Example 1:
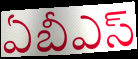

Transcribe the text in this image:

ఏబీఎస్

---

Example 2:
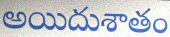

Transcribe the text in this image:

అయిదుశాతం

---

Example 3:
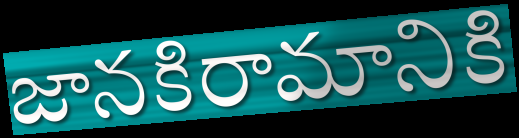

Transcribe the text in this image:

జానకిరామానికి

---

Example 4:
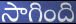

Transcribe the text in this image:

సాగింది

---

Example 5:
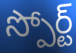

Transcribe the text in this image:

స్పోర్ట్